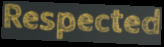
Respected